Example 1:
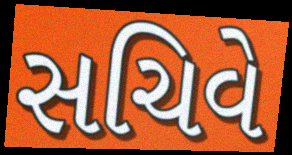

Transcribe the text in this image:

સચિવે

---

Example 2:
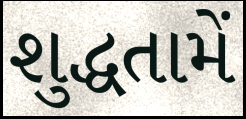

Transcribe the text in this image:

શુદ્ધતામેં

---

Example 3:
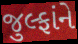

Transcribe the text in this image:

જુલ્ફાંને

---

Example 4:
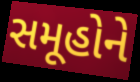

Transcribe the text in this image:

સમૂહોને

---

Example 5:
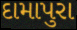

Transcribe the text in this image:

દામાપુરા